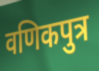
वणिकपुत्र